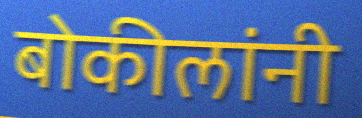
बोकीलांनी